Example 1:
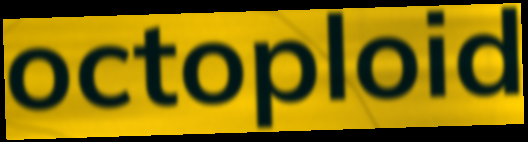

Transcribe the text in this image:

octoploid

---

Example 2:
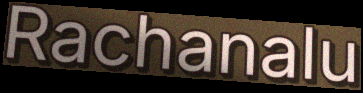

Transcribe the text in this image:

Rachanalu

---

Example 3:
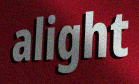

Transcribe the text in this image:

alight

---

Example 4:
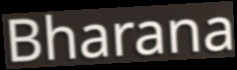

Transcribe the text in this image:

Bharana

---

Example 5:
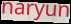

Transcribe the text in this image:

naryun